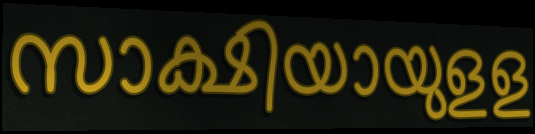
സാക്ഷിയായുളള